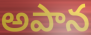
అపాన